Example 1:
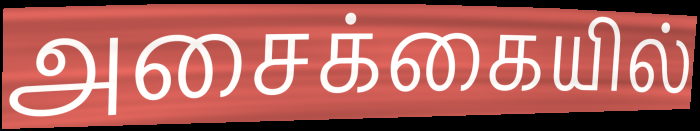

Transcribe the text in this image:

அசைக்கையில்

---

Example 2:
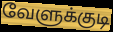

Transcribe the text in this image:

வேளுக்குடி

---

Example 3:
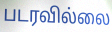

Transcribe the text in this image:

படரவில்லை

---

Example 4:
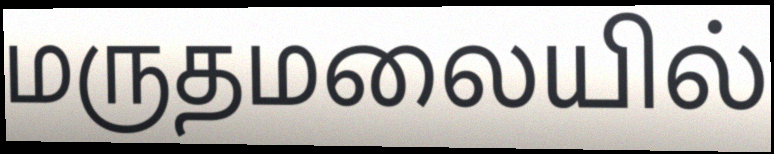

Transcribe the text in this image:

மருதமலையில்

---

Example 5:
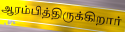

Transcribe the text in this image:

ஆரம்பித்திருக்கிறார்